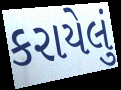
કરાયેલું